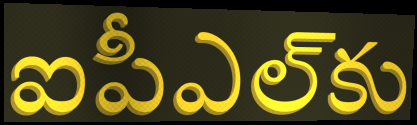
ఐపీఎల్‌కు